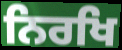
ਨਿਰਖਿ